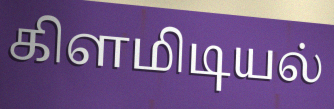
கிளமிடியல்